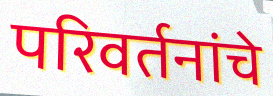
परिवर्तनांचे